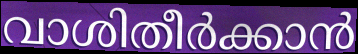
വാശിതീർക്കാൻ